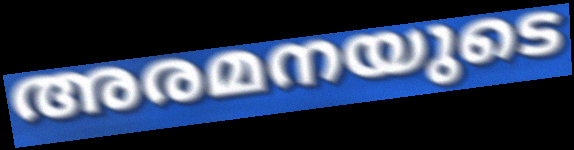
അരമനയുടെ